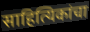
साहित्यिकांचा